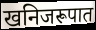
खनिजरूपात